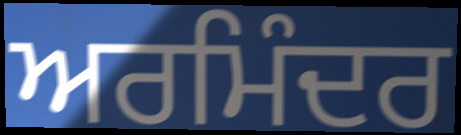
ਅਰਮਿੰਦਰ